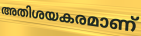
അതിശയകരമാണ്